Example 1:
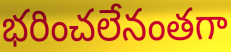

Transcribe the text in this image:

భరించలేనంతగా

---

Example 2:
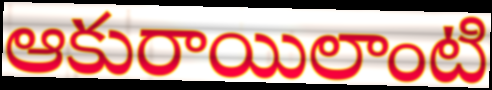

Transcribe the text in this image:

ఆకురాయిలాంటి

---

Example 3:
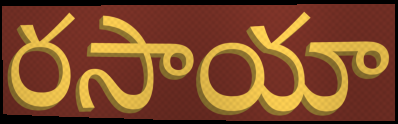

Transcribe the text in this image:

రసాయా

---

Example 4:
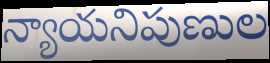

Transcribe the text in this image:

న్యాయనిపుణుల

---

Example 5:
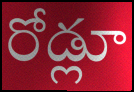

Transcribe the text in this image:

రోడ్లూ